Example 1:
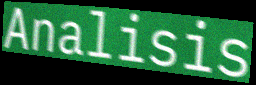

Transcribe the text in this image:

Analisis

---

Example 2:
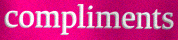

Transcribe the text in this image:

compliments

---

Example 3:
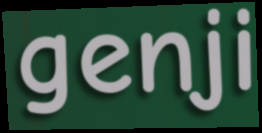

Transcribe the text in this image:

genji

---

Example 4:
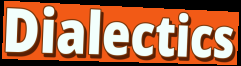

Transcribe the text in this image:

Dialectics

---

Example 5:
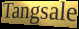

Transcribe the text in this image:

Tangsale